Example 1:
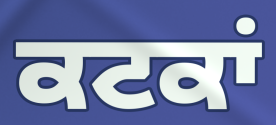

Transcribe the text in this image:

ਕਟਕਾਂ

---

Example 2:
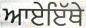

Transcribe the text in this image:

ਆਏਇੱਥੇ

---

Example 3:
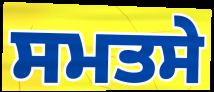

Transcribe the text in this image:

ਸਮਤਸੇ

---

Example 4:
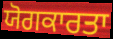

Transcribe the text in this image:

ਯੋਗਕਾਰਤਾ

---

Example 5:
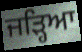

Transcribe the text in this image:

ਜੜ੍ਹਿਆ